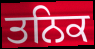
ਤਨਿਕ